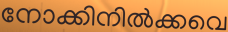
നോക്കിനിൽക്കവെ